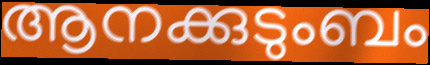
ആനക്കുടുംബം